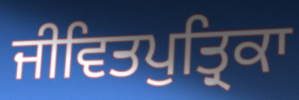
ਜੀਵਿਤਪੁਤ੍ਰਿਕਾ